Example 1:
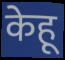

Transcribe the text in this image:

केहू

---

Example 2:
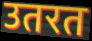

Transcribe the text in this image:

उतरत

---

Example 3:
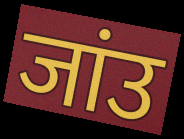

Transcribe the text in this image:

जांउ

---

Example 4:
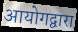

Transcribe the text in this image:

आयोगद्वारा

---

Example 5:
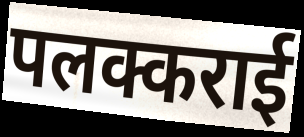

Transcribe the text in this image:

पलक्कराई